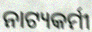
ନାଟ୍ୟକର୍ମୀ